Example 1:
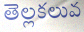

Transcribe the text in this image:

తెల్లకలువ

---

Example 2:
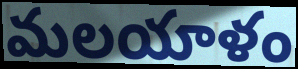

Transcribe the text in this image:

మలయాళం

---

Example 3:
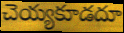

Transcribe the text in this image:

చెయ్యకూడదూ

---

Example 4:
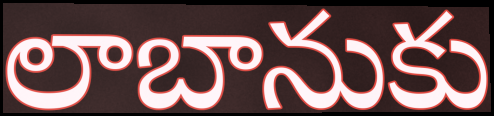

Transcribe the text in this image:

లాబానుకు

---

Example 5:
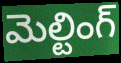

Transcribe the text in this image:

మెల్టింగ్